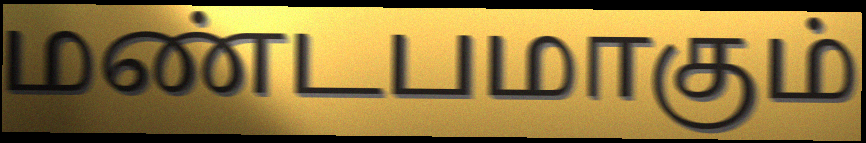
மண்டபமாகும்